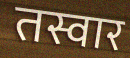
तस्वार